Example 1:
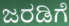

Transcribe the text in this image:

ಜರಡಿಗೆ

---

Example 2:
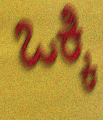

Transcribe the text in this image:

ಒಕ್ಕಿ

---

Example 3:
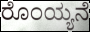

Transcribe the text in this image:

ರೊಂಯ್ಯನೆ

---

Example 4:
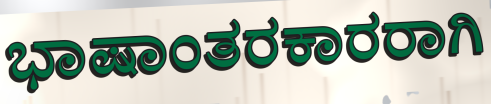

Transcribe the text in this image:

ಭಾಷಾಂತರಕಾರರಾಗಿ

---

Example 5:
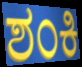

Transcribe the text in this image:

ಶಂಕಿ